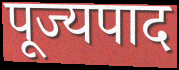
पूज्यपाद